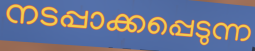
നടപ്പാക്കപ്പെടുന്ന